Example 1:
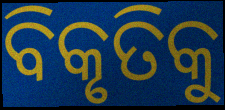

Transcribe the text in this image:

ବିକୃତିକୁ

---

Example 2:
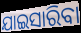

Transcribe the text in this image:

ଯାଇସାରିବା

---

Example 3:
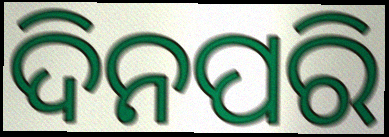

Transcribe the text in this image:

ଦିନପରି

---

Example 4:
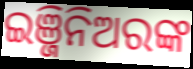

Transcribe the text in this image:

ଇଞ୍ଜିନିଅରଙ୍କ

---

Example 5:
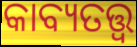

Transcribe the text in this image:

କାବ୍ୟତତ୍ତ୍ୱ